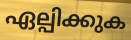
ഏല്പിക്കുക